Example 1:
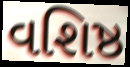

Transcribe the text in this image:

વશિષ્ઠ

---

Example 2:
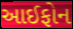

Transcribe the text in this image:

આઈફોન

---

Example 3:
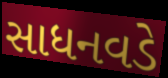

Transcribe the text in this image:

સાધનવડે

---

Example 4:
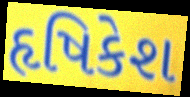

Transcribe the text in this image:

હૃષિકેશ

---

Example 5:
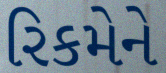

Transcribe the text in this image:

રિકમેને